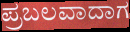
ಪ್ರಬಲವಾದಾಗ